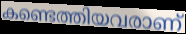
കണ്ടെത്തിയവരാണ്